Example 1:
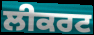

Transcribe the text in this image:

ਲੀਕਰਟ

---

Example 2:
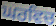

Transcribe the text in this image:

ਘਰਵਿਚ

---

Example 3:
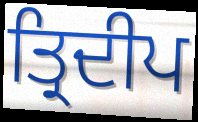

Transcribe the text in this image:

ਤ੍ਰਿਦੀਪ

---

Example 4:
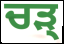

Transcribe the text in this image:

ਚੜ੍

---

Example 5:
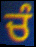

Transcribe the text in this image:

ਚੰ